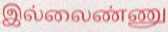
இல்லைண்ணு